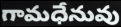
గామధేనువు